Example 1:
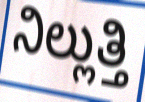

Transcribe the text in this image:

ನಿಲ್ಲುತ್ತಿ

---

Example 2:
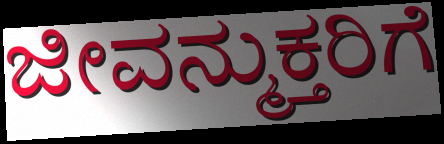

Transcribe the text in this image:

ಜೀವನ್ಮುಕ್ತರಿಗೆ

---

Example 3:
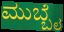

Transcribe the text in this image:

ಮುಬ್ಬೈ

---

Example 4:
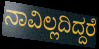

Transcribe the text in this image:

ನಾವಿಲ್ಲದಿದ್ದರೆ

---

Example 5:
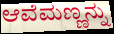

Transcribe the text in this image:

ಆವೆಮಣ್ಣನ್ನು